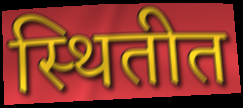
स्थितीत